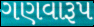
ગણવારૂપ